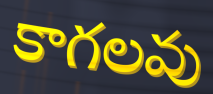
కాగలవు